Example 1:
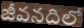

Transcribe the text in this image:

జీవనదిలో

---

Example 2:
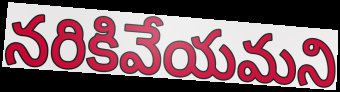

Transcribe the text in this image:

నరికివేయమని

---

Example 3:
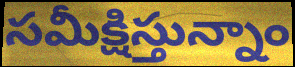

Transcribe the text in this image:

సమీక్షిస్తున్నాం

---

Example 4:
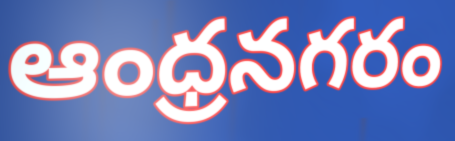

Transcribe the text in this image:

ఆంధ్రనగరం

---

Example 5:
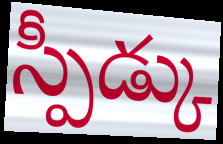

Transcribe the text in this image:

స్పీడ్కు